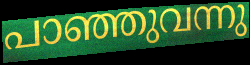
പാഞ്ഞുവന്നു